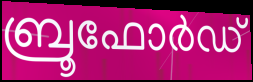
ബ്രൂഫോർഡ്